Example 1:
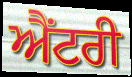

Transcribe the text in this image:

ਐਂਟਰੀ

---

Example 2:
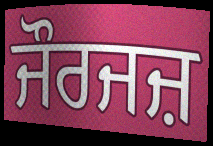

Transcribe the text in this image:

ਜੌਰਜਜ਼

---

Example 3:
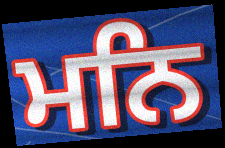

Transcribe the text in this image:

ਮਨਿ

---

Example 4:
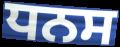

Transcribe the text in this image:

ਧਨਸ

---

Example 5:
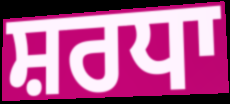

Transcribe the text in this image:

ਸ਼ਰਧਾ